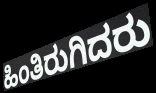
ಹಿಂತಿರುಗಿದರು